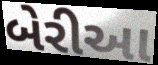
બેરીઆ